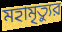
মহামৃত্যুর